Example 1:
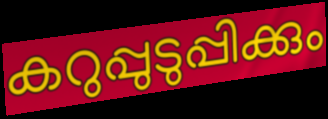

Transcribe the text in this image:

കറുപ്പുടുപ്പിക്കും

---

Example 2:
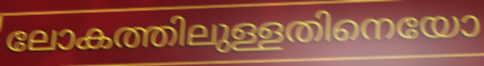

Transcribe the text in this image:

ലോകത്തിലുള്ളതിനെയോ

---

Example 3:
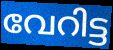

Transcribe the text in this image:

വേറിട്ട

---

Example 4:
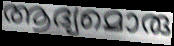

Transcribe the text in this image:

ആദ്യമൊരു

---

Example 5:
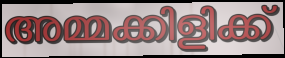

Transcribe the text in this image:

അമ്മക്കിളിക്ക്